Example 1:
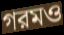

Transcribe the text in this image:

গরমও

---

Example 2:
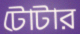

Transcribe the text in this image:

টোটার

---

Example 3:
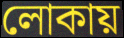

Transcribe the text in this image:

লোকায়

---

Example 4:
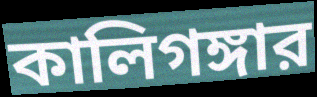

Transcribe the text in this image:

কালিগঙ্গার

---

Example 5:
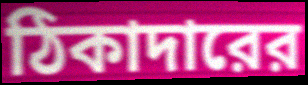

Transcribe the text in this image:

ঠিকাদারের